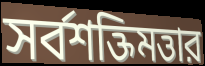
সর্বশক্তিমত্তার